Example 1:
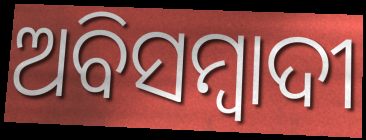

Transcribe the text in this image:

ଅବିସମ୍ବାଦୀ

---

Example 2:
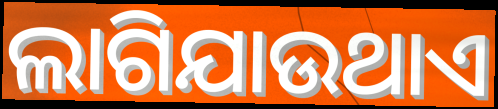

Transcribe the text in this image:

ଲାଗିଯାଉଥାଏ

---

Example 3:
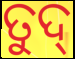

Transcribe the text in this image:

ତୁଦ୍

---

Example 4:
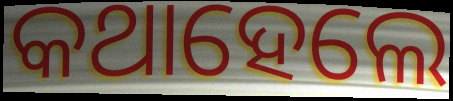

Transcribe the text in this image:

କଥାହେଲେ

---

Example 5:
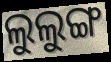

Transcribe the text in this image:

ଲୁଲୁଙ୍ଗ